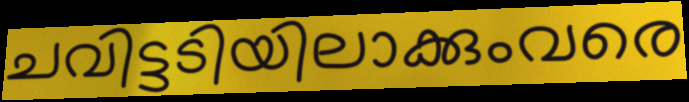
ചവിട്ടടിയിലാക്കുംവരെ